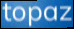
topaz